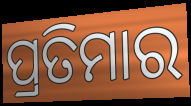
ପ୍ରତିମାର